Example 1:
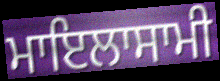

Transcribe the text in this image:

ਮਾਇਲਾਸਾਮੀ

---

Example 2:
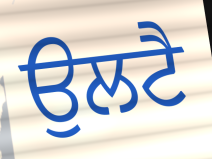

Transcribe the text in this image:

ਉਲਟੈ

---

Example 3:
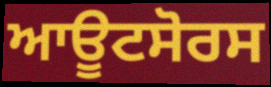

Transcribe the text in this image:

ਆਊਟਸੋਰਸ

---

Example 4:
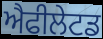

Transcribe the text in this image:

ਐਫੀਲੇਟਡ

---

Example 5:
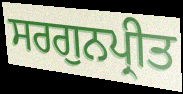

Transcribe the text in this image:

ਸਰਗੁਨਪ੍ਰੀਤ